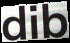
dib